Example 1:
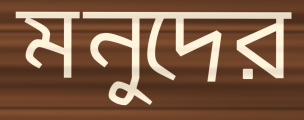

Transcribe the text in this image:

মনুদের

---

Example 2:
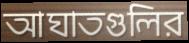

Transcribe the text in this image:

আঘাতগুলির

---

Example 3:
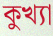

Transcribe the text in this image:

কুখ্যা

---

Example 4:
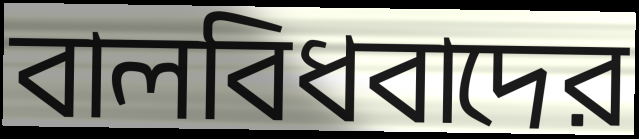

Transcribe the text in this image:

বালবিধবাদের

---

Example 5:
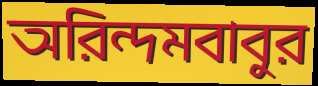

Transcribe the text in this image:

অরিন্দমবাবুর